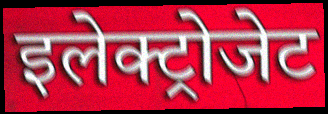
इलेक्ट्रोजेट